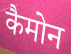
कैमोन